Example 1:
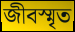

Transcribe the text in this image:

জীবস্মৃত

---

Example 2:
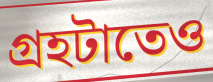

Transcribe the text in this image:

গ্রহটাতেও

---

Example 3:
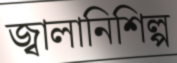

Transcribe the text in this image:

জ্বালানিশিল্প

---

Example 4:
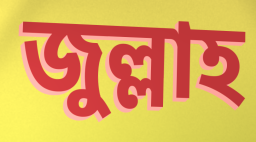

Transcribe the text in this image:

জুল্লাহ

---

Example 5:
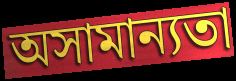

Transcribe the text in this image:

অসামান্যতা